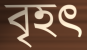
বৃহৎ